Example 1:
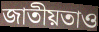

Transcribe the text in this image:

জাতীয়তাও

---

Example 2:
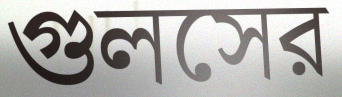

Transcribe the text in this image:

গুলসের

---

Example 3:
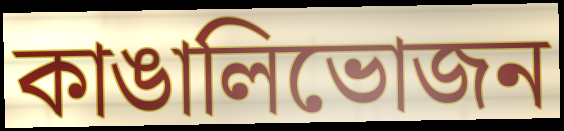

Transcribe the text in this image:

কাঙালিভোজন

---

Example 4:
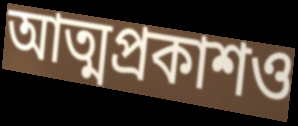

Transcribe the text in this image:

আত্মপ্রকাশও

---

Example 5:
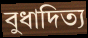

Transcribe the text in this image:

বুধাদিত্য